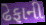
ઢેફાની